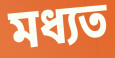
মধ্যত